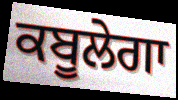
ਕਬੂਲੇਗਾ